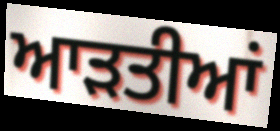
ਆੜਤੀਆਂ